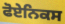
ਫੋਏਨਿਕਸ